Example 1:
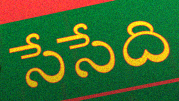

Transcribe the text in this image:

సేసేది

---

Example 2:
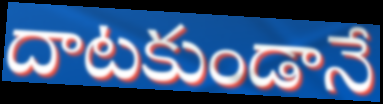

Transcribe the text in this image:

దాటకుండానే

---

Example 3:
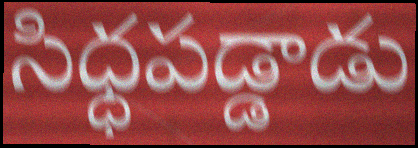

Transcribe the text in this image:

సిధ్ధపడ్డాడు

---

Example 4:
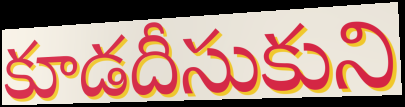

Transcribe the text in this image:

కూడదీసుకుని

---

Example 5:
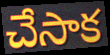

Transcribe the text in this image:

చేసాక